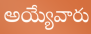
అయ్యేవారు